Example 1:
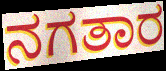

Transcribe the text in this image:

ನಗತಾರ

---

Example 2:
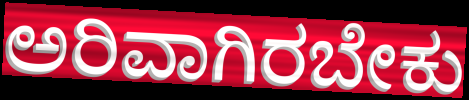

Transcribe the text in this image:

ಅರಿವಾಗಿರಬೇಕು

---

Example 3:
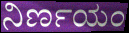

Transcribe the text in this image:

ನಿರ್ಣಯಂ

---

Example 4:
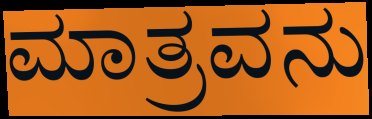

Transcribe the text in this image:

ಮಾತ್ರವನು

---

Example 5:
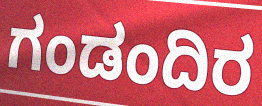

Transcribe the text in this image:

ಗಂಡಂದಿರ